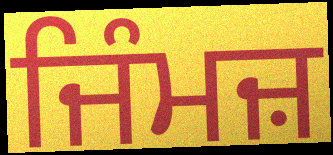
ਜਿੰਮਜ਼